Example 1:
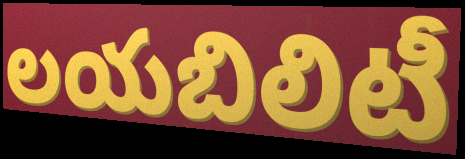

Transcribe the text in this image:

లయబిలిటీ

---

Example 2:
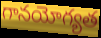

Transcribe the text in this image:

గానయోగ్యత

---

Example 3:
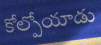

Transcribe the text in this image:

కోల్పోయాడు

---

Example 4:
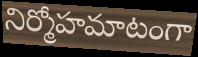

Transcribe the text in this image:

నిర్మోహమాటంగా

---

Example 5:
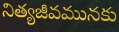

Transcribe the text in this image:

నిత్యజీవమునకు